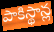
పాకిస్థాన్ల